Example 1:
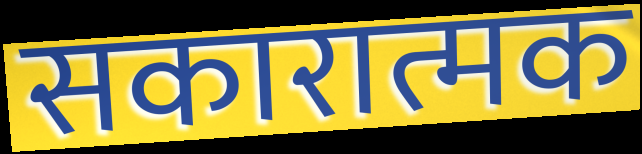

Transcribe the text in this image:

सकारात्मक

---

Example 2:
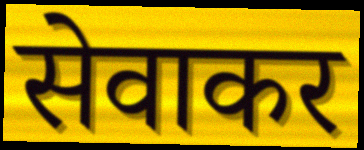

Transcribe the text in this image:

सेवाकर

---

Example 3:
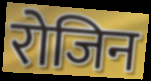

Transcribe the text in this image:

रोजिन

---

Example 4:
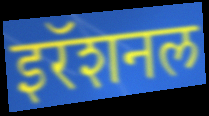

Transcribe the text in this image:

इरॅशनल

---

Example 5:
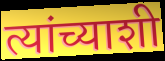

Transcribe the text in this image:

त्यांच्याशी